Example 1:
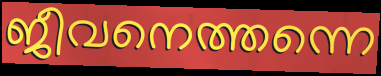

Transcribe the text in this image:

ജീവനെത്തന്നെ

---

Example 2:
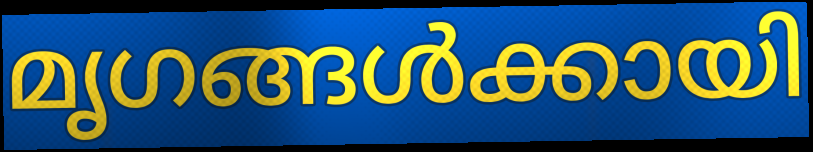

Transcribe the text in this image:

മൃഗങ്ങൾക്കായി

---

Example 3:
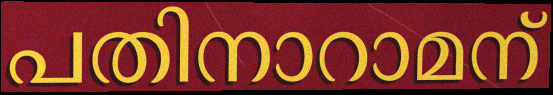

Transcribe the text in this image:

പതിനാറാമന്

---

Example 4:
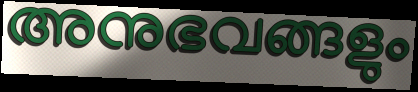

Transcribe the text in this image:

അനുഭവങ്ങളും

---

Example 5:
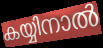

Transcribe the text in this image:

കയ്യിനാൽ